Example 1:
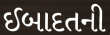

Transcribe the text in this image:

ઈબાદતની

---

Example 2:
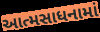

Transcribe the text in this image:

આત્મસાધનામાં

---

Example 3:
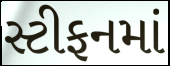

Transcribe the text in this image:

સ્ટીફનમાં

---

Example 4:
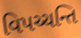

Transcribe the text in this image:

વિપચ્ચન્તિ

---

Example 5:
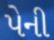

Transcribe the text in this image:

પેની